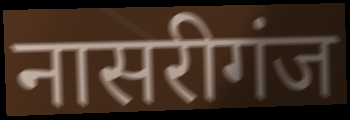
नासरीगंज